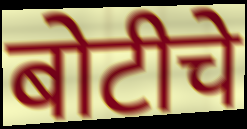
बोटीचे